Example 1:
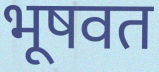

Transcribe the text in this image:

भूषवत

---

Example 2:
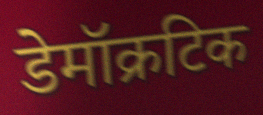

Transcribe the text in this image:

डेमॉक्रटिक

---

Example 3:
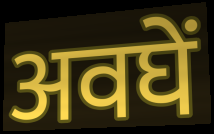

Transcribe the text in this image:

अवघें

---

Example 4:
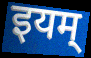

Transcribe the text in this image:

इयम्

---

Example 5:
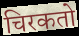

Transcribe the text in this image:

चिरकतो